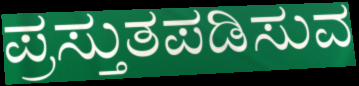
ಪ್ರಸ್ತುತಪಡಿಸುವ